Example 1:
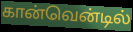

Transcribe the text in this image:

கான்வென்டில்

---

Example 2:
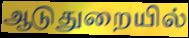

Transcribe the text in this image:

ஆடுதுறையில்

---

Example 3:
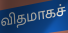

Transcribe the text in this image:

விதமாகச்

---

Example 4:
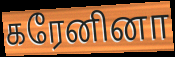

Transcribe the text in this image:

கரேனினா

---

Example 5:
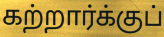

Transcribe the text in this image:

கற்றார்க்குப்